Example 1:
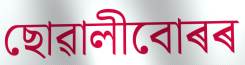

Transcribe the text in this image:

ছোৱালীবোৰৰ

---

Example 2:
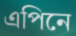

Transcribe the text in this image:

এপিনে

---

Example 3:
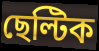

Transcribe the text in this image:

ছেল্টিক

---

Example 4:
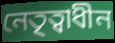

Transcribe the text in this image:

নেতৃত্বাধীন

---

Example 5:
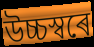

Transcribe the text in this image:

উচ্চস্বৰে